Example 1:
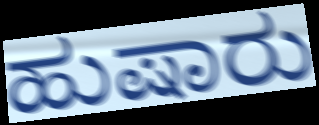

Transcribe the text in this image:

ಹುಷಾರು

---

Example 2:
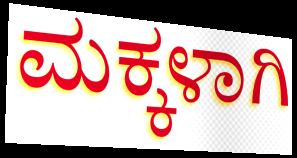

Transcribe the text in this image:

ಮಕ್ಕಳಾಗಿ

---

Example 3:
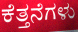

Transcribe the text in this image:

ಕೆತ್ತನೆಗಳು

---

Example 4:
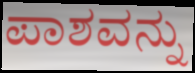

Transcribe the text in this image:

ಪಾಶವನ್ನು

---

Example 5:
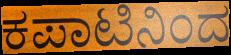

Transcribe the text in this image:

ಕಪಾಟಿನಿಂದ